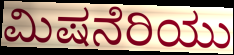
ಮಿಷನೆರಿಯು